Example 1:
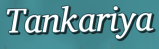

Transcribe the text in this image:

Tankariya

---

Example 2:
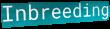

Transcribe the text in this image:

Inbreeding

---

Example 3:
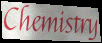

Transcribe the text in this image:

Chemistry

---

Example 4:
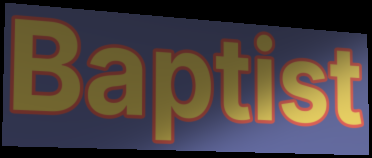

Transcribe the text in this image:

Baptist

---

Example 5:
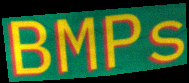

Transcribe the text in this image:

BMPs